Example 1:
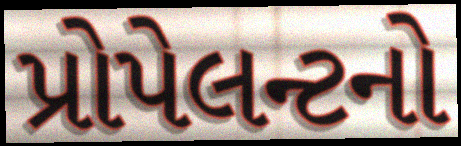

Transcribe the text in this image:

પ્રોપેલન્ટનો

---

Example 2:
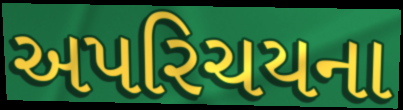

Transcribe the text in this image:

અપરિચયના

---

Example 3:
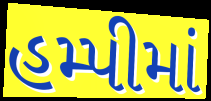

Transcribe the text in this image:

હમ્પીમાં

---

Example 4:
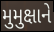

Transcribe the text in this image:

મુમુક્ષાને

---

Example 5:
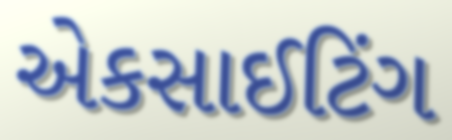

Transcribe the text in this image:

એકસાઈટિંગ